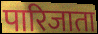
पारिजाता